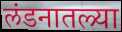
लंडनातल्या